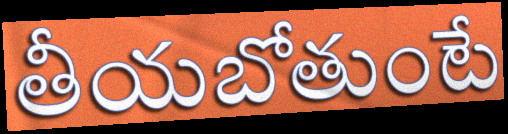
తీయబోతుంటే